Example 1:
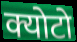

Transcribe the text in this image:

क्‍योटो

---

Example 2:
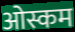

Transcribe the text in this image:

ओस्कम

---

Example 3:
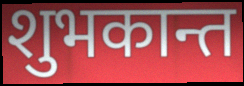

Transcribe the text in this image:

शुभकान्त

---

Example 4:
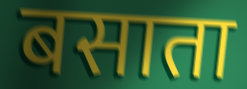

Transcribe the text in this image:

बसाता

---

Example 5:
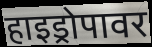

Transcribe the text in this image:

हाइड्रोपावर